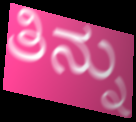
ತಿನ್ನು